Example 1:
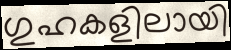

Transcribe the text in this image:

ഗുഹകളിലായി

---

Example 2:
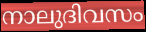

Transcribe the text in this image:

നാലുദിവസം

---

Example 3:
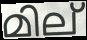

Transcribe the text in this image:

മില്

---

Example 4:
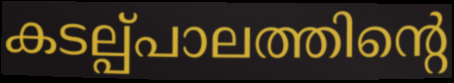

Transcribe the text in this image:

കടല്പ്പാലത്തിന്റെ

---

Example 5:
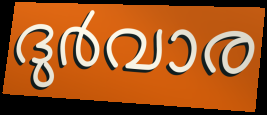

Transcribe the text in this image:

ദുർവാര